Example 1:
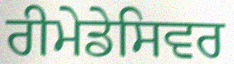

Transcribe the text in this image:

ਰੀਮੇਡੇਸਿਵਰ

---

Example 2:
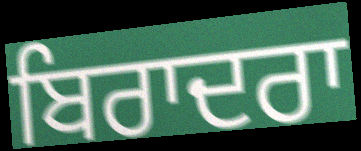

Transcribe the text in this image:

ਬਿਰਾਦਰਾ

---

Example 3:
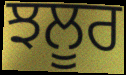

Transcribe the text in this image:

ਝਲੂਰ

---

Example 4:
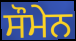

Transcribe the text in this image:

ਸੌਮੇਨ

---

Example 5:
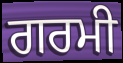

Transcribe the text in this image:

ਗਰਮੀ